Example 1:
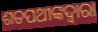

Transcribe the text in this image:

ଶତପଥୀଙ୍କଦ୍ୱାରା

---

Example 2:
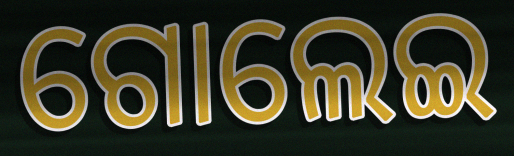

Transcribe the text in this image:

ଗୋଲେଇ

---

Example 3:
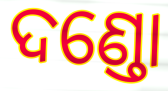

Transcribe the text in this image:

ଦଣ୍ଡୋ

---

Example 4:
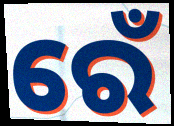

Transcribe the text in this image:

ରେଁ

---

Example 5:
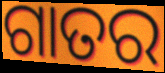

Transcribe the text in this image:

ଗାତର